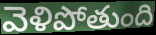
వెళిపోతుంది